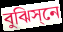
বুঝিস্‌নে